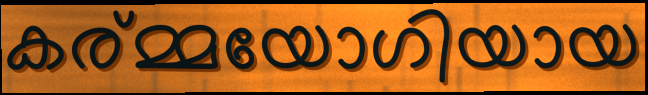
കര്മ്മയോഗിയായ